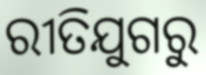
ରୀତିଯୁଗରୁ